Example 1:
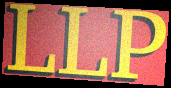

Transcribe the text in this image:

LLP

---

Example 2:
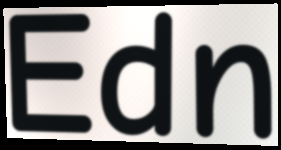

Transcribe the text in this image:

Edn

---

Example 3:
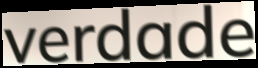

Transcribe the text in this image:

verdade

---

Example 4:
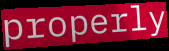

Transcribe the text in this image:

properly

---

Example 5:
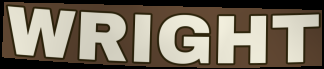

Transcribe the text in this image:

WRIGHT